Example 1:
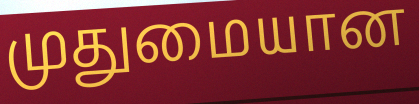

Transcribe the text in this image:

முதுமையான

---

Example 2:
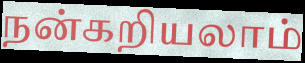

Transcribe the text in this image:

நன்கறியலாம்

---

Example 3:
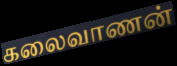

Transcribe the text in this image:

கலைவாணன்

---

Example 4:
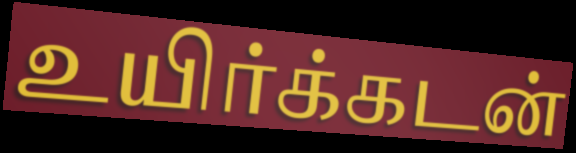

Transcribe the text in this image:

உயிர்க்கடன்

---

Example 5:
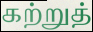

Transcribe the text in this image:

கற்றுத்